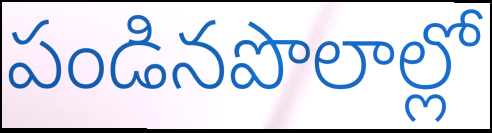
పండినపొలాల్లో